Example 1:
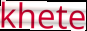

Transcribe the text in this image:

khete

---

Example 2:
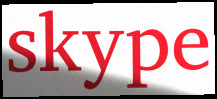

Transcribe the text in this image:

skype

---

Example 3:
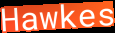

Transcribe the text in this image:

Hawkes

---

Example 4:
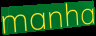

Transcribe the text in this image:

manha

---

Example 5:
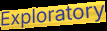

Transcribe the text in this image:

Exploratory